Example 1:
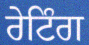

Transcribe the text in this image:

ਰੇਟਿੰਗ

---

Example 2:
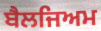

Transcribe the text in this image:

ਬੈਲਜਿਅਮ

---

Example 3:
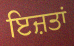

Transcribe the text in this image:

ਇਜ਼ਤਾਂ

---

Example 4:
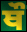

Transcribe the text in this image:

ਥੌ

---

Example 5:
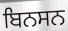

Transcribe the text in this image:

ਬਿਨਸਨ